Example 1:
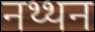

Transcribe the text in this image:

नथ्थन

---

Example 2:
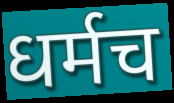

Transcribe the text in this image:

धर्मच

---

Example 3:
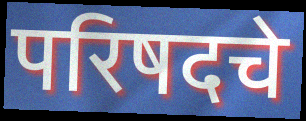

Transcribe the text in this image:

परिषदचे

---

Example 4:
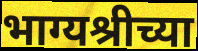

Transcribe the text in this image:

भाग्यश्रीच्या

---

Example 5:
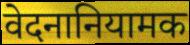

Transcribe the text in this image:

वेदनानियामक